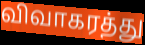
விவாகரத்து